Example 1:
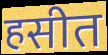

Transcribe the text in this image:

हसीत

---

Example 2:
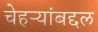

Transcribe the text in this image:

चेहऱ्यांबद्दल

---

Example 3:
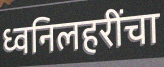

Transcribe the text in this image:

ध्वनिलहरींचा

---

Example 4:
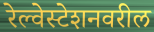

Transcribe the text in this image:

रेल्वेस्टेशनवरील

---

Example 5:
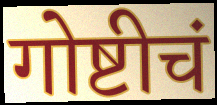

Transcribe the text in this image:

गोष्टीचं